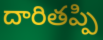
దారితప్పి